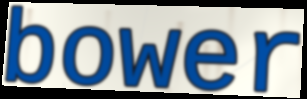
bower